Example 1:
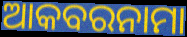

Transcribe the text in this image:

ଆକବରନାମା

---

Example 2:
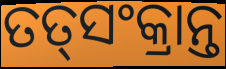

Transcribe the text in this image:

ତତ୍‌ସଂକ୍ରାନ୍ତ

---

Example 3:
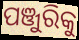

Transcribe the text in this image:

ପଞ୍ଜୁରିକୁ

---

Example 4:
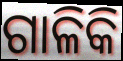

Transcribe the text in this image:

ଗାଳିକି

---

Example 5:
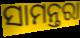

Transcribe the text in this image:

ସାମନ୍ତରା